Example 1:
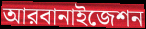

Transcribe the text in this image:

আরবানাইজেশন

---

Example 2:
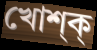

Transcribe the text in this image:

খোশ্ক্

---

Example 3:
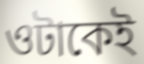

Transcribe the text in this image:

ওটাকেই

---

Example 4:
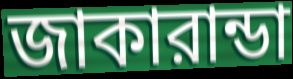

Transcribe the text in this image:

জাকারান্ডা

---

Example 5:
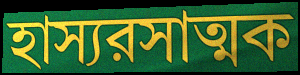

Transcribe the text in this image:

হাস্যরসাত্মক